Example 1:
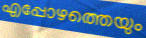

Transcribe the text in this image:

എപ്പോഴത്തെയും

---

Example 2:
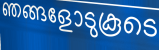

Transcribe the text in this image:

ഞങ്ങളോടുകൂടെ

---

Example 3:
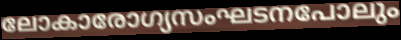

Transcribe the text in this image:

ലോകാരോഗ്യസംഘടനപോലും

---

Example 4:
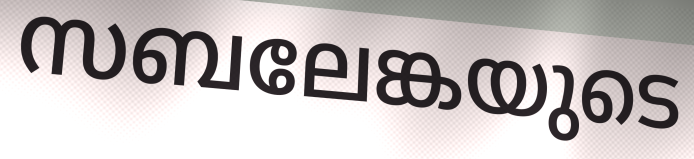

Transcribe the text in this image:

സബലേങ്കയുടെ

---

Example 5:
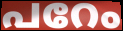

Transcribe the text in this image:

പറേം